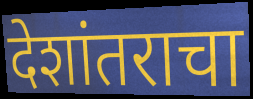
देशांतराचा